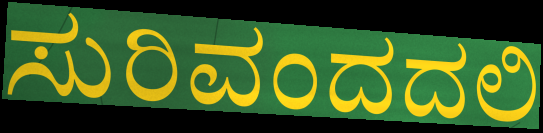
ಸುರಿವಂದದಲಿ